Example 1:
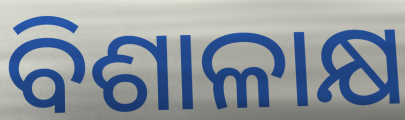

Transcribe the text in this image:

ବିଶାଳାକ୍ଷ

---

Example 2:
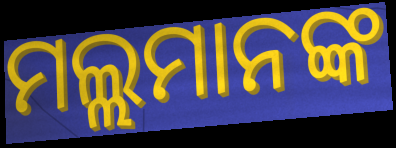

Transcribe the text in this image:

ମଲ୍ଲମାନଙ୍କ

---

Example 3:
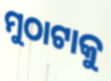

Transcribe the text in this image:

ମୁଠାଟାକୁ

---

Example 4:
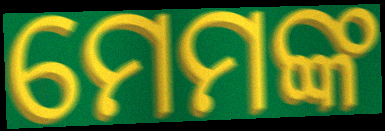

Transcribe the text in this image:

ମେମଙ୍କ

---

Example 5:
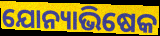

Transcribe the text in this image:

ଯୋନ୍ୟାଭିଷେକ